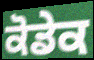
ਕੋਡੇਕ